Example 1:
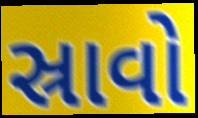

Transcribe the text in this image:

સ્રાવો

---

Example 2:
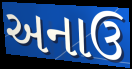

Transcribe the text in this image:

અનાઉ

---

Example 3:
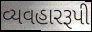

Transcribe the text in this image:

વ્યવહારરૂપી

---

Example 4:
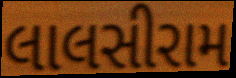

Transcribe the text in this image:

લાલસીરામ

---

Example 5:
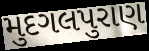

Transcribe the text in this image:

મુદગલપુરાણ